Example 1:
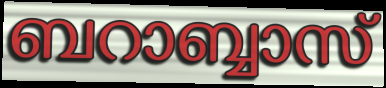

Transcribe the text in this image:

ബറാബ്ബാസ്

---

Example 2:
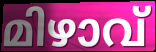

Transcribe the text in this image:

മിഴാവ്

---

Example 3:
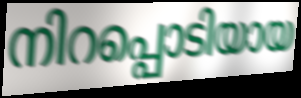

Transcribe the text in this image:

നിറപ്പൊടിയായ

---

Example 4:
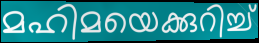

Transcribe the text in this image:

മഹിമയെക്കുറിച്ച്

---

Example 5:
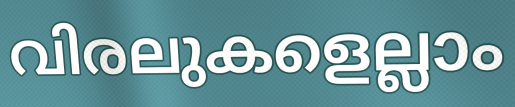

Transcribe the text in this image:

വിരലുകളെല്ലാം